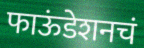
फाऊंडेशनचं